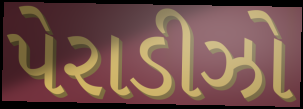
પેરાડીઝો